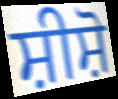
ਸ਼ੀਸ਼ੋ